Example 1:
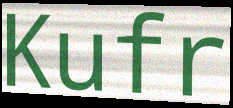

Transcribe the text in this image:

Kufr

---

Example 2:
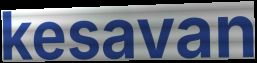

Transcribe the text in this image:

kesavan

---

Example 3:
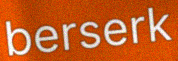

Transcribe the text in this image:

berserk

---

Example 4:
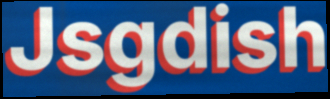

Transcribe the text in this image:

Jsgdish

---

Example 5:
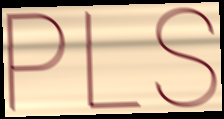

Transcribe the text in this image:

PLS